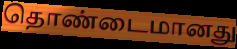
தொண்டைமானது